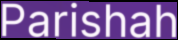
Parishah